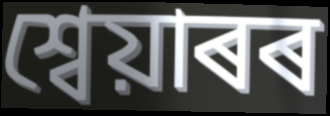
শ্বেয়াৰৰ